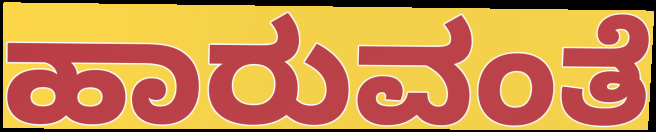
ಹಾರುವಂತೆ